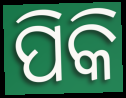
ପିକି